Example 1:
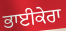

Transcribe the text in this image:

ਭਾਈਕੇਰਾ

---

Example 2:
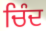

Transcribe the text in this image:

ਚਿੰਦ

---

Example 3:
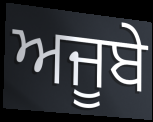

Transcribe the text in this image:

ਅਜੂਬੇ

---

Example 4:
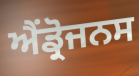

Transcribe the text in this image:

ਐਂਡ੍ਰੋਜਨਸ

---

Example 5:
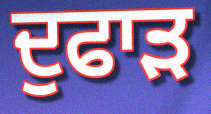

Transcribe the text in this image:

ਦੁਫਾੜ